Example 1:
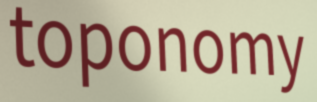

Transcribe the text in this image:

toponomy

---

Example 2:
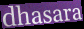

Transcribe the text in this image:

dhasara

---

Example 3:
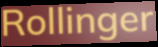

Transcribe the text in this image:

Rollinger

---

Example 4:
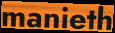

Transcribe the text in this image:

manieth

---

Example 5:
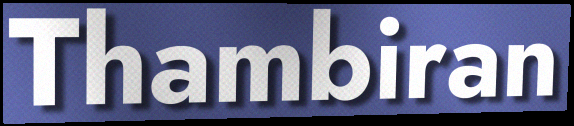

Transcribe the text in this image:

Thambiran